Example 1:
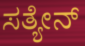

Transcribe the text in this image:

ಸತ್ಯೇನ್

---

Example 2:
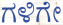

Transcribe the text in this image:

ಗಳಿಗೇ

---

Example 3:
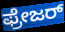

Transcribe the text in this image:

ಫ್ರೇಜರ್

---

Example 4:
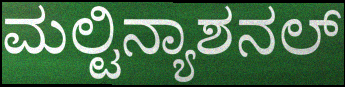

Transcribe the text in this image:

ಮಲ್ಟಿನ್ಯಾಶನಲ್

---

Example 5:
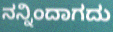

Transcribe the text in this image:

ನನ್ನಿಂದಾಗದು